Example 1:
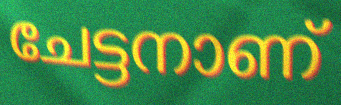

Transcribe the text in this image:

ചേട്ടനാണ്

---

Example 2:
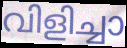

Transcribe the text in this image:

വിളിച്ചാ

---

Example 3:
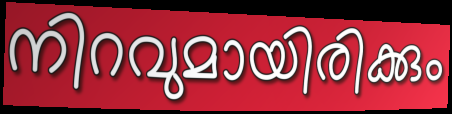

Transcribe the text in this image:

നിറവുമായിരിക്കും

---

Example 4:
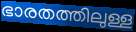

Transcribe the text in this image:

ഭാരതത്തിലുള്ള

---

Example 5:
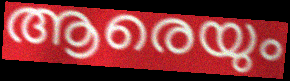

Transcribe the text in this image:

ആരെയും